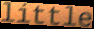
little